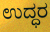
ಉದ್ಧರ